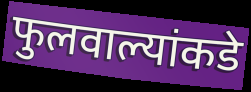
फुलवाल्यांकडे